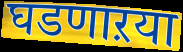
घडणाऱया